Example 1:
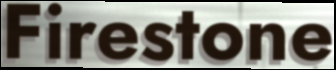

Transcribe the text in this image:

Firestone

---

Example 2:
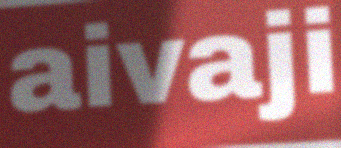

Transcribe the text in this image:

aivaji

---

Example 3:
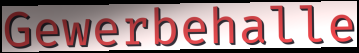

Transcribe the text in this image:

Gewerbehalle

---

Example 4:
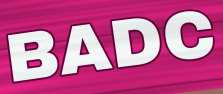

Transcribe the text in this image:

BADC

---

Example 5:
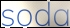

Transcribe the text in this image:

soda